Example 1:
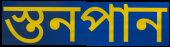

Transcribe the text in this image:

স্তনপান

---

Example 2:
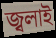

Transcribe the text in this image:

জ্বলাই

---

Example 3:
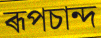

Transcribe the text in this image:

ৰূপচান্দ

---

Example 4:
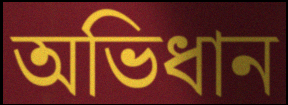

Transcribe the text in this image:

অভিধান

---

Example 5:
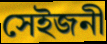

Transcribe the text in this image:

সেইজনী